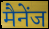
मैनेंज